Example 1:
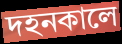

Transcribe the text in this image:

দহনকালে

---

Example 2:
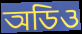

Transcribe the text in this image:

অডিও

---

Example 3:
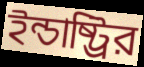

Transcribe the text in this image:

ইন্ডাষ্ট্রির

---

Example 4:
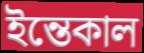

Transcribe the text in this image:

ইন্তেকাল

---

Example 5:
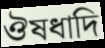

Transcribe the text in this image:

ঔষধাদি